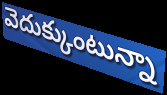
వెదుక్కుంటున్నా